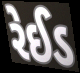
રેઈડ